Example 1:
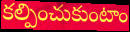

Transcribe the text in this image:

కల్పించుకుంటాం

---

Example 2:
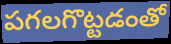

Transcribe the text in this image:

పగలగొట్టడంతో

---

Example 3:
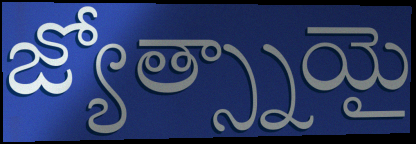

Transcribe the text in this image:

జ్యోత్స్నాయై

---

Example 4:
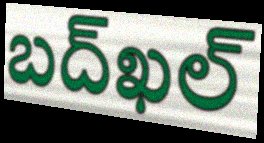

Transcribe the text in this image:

బద్‌ఖల్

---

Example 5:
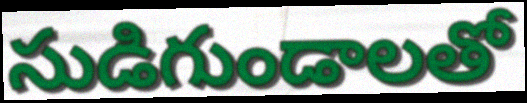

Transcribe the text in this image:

సుడిగుండాలతో